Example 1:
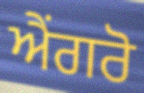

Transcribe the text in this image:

ਐਂਗਰੋ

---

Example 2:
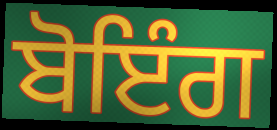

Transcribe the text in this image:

ਬੋਇੰਗ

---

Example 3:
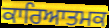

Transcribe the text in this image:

ਕਾਰਿਆਤਮਕ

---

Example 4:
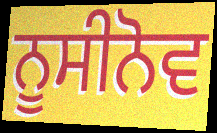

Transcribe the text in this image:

ਨੂਸੀਨੋਵ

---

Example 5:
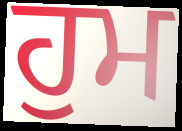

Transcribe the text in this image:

ਹੁਮ